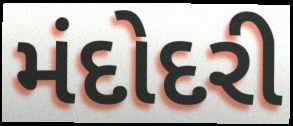
મંદોદરી